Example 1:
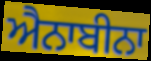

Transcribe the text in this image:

ਐਨਾਬੀਨਾ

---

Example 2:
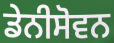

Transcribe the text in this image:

ਡੇਨੀਸੋਵਨ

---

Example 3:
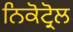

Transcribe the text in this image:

ਨਿਕੋਟ੍ਰੋਲ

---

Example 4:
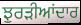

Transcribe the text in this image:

ਝੁਰੜੀਆਂਦਾਰ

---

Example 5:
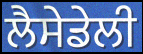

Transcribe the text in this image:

ਲੈਸੇਡੇਲੀ